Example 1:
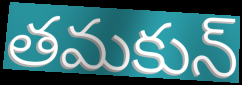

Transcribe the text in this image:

తమకున్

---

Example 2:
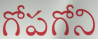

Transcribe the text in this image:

గోపగోని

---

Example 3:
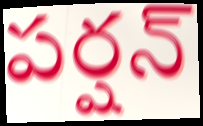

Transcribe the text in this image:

పర్షన్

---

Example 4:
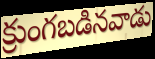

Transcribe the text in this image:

క్రుంగబడినవాడు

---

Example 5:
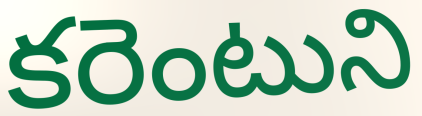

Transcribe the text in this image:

కరెంటుని